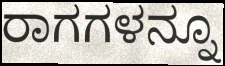
ರಾಗಗಳನ್ನೂ